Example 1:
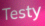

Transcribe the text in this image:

Testy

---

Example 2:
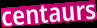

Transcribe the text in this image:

centaurs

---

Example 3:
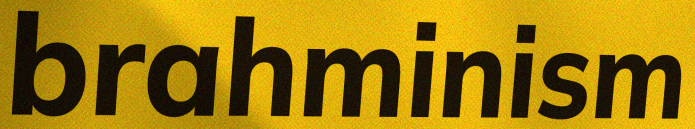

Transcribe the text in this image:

brahminism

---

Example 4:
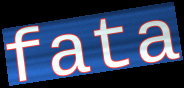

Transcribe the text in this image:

fata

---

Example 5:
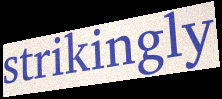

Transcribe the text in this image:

strikingly